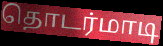
தொடர்மாடி